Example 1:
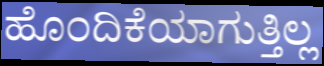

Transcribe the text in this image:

ಹೊಂದಿಕೆಯಾಗುತ್ತಿಲ್ಲ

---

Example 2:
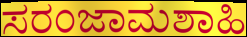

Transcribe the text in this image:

ಸರಂಜಾಮಶಾಹಿ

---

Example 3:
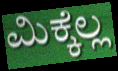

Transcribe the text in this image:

ಮಿಕ್ಕೆಲ್ಲ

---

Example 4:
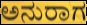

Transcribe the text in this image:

ಅನುರಾಗ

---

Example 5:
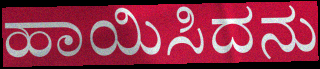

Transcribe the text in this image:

ಹಾಯಿಸಿದನು